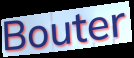
Bouter